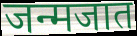
जन्मजात